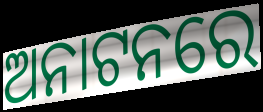
ଅନାଟନରେ